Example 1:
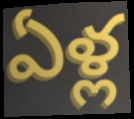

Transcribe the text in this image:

ఏళ్ల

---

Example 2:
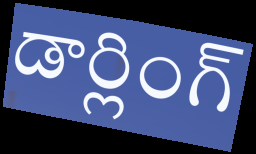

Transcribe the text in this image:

డార్లింగ్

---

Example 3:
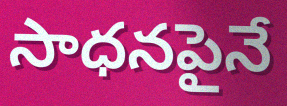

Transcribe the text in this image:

సాధనపైనే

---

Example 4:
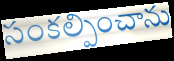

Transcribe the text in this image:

సంకల్పించాను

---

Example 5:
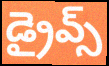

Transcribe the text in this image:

డ్రైవ్స్